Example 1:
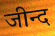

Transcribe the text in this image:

जीन्द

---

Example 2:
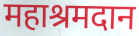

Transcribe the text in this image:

महाश्रमदान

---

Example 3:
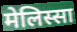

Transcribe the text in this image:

मेलिस्सा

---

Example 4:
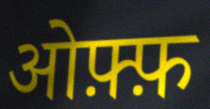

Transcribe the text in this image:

ओफ़्फ़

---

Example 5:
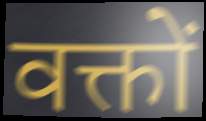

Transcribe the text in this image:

वक्तों